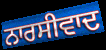
ਨਾਰਸੀਵਾਦ